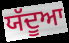
ਯੱਦੂਆ